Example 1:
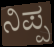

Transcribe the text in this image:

ನಿಪ್ಪ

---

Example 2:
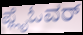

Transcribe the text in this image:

ಫ್ಲೈಓವರ್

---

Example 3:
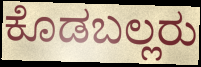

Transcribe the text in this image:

ಕೊಡಬಲ್ಲರು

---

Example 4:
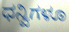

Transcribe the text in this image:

ಧನ್ವಿಗಳೂ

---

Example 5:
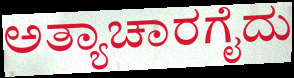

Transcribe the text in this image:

ಅತ್ಯಾಚಾರಗೈದು